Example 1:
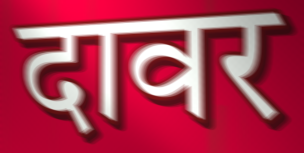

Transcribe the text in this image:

दावर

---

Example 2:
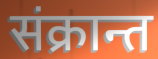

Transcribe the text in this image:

संक्रान्त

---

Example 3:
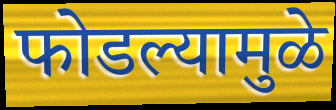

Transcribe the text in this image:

फोडल्यामुळे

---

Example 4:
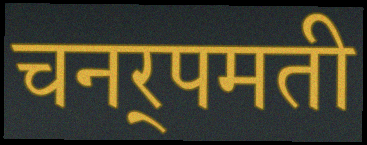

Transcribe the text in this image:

चनर्पमती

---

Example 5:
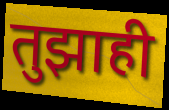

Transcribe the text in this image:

तुझाही